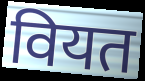
वियत